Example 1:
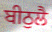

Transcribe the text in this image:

ਬੀਠੁਲੈ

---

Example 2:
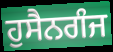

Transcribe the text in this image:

ਹੁਸੈਨਗੰਜ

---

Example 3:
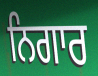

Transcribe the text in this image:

ਨਿਗਾਰ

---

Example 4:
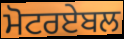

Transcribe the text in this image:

ਮੋਟਰਏਬਲ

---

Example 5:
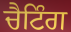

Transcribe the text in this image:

ਚੈਟਿੰਗ